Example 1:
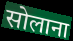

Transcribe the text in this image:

सोलाना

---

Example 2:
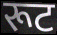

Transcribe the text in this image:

रूट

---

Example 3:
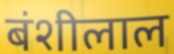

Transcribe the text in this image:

बंशीलाल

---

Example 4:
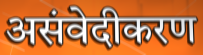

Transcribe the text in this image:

असंवेदीकरण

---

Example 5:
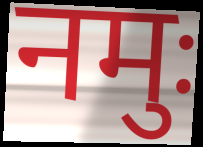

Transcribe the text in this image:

नमुः